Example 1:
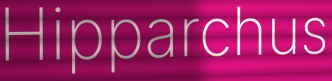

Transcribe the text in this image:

Hipparchus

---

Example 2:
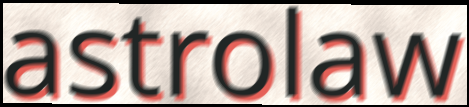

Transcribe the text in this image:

astrolaw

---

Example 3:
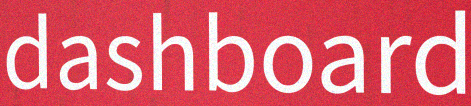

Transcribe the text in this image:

dashboard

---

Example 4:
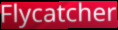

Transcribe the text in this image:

Flycatcher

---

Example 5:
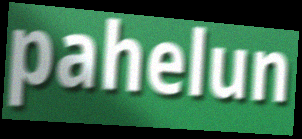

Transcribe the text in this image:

pahelun